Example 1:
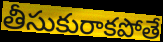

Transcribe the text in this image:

తీసుకురాకపోతే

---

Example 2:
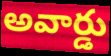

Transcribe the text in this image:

అవార్డు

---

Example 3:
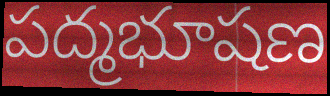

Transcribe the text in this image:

పద్మభూషణ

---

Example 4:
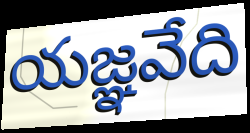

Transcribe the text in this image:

యజ్ఞవేది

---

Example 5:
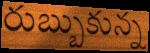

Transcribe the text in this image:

రుబ్బుకున్న